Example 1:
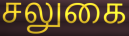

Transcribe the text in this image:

சலுகை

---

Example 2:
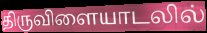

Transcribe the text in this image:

திருவிளையாடலில்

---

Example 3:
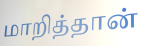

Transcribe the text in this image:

மாறித்தான்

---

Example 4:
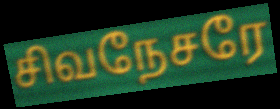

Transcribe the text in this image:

சிவநேசரே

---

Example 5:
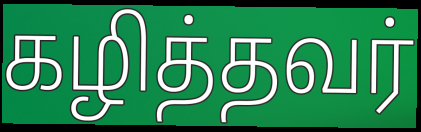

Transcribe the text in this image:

கழித்தவர்